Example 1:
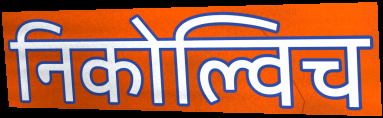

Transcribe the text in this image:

निकोल्विच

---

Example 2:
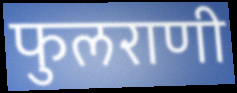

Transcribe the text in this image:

फुलराणी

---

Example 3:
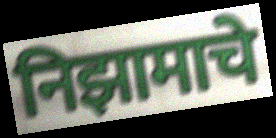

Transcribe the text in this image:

निझामाचे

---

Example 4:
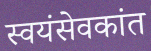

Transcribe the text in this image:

स्वयंसेवकांत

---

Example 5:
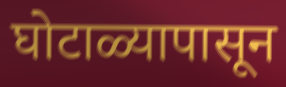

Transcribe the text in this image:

घोटाळ्यापासून